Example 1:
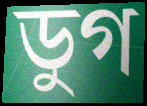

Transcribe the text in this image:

ডুগ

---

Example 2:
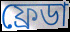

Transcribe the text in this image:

ফ্রেডা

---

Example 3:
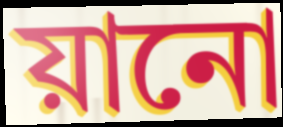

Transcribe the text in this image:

য়ানো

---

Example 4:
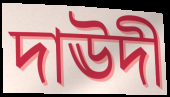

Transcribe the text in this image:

দাঊদী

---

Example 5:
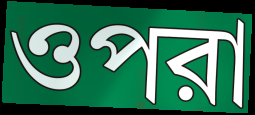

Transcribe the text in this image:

ওপরা